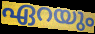
ഏറയും